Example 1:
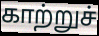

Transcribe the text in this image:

காற்றுச்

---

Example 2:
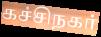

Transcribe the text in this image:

கச்சிநகர்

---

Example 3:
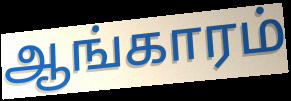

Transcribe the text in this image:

ஆங்காரம்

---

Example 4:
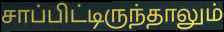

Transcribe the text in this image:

சாப்பிட்டிருந்தாலும்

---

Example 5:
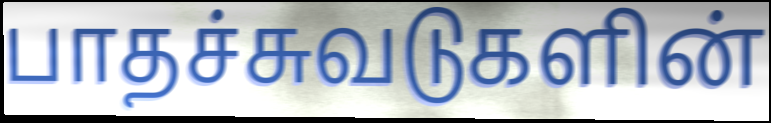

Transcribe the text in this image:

பாதச்சுவடுகளின்